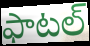
ఫాటల్